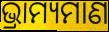
ଭ୍ରାମ୍ୟମାଣ